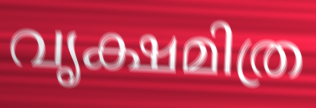
വൃക്ഷമിത്ര